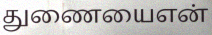
துணையைஎன்